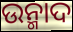
ଉନ୍ମାଦ